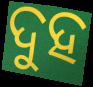
ଦୁହ